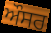
ਔਸਰ